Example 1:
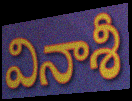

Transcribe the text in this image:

వినాశీ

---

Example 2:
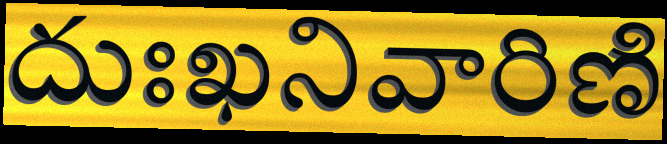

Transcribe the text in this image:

దుఃఖనివారిణి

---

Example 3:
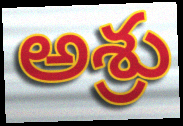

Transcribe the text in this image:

అశ్రు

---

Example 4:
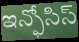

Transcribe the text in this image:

ఇన్ఫోసిస్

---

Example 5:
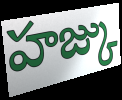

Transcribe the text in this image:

హజ్కు